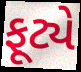
ફૂટ્યે